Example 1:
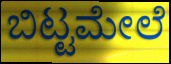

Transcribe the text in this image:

ಬಿಟ್ಟಮೇಲೆ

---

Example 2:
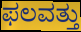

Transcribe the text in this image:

ಫಲವತ್ತು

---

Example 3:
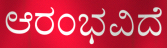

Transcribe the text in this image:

ಆರಂಭವಿದೆ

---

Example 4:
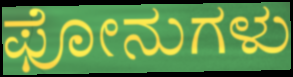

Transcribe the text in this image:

ಫೋನುಗಳು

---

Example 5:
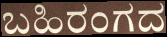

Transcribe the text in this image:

ಬಹಿರಂಗದ